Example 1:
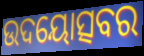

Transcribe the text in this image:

ଉଦୟୋତ୍ସବର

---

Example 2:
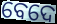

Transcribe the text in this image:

ବେଦେ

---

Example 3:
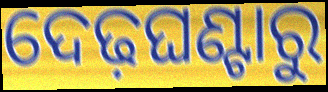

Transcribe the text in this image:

ଦେଢ଼ଘଣ୍ଟାରୁ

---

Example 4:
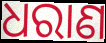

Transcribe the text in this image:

ଧରାଣ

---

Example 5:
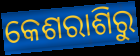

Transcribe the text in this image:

କେଶରାଶିରୁ